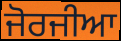
ਜੋਰਜੀਆ